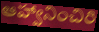
ఆహ్వానించిరి